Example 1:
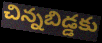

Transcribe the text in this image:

చిన్నబిడ్డకు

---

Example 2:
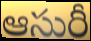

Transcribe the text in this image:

ఆసురీ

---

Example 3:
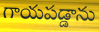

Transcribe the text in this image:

గాయపడ్డాను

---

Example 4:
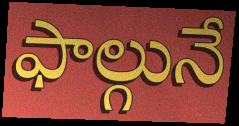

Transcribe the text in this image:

ఫాల్గునే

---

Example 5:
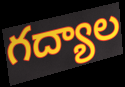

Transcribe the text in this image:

గద్యాల